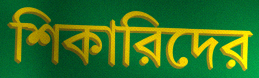
শিকারিদের